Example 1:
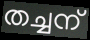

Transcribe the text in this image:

തച്ചന്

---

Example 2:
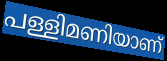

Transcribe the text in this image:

പള്ളിമണിയാണ്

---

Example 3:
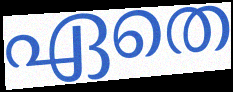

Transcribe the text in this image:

ഏതെ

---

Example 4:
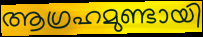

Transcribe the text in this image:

ആഗ്രഹമുണ്ടായി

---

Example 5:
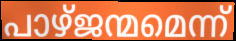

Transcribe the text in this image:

പാഴ്ജന്മമെന്ന്